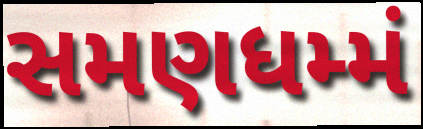
સમણધમ્મં